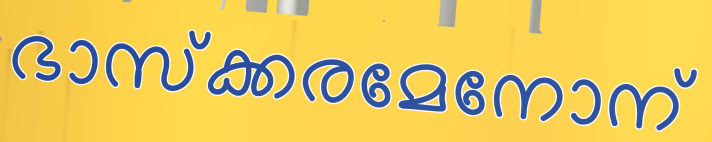
ഭാസ്ക്കരമേനോന്